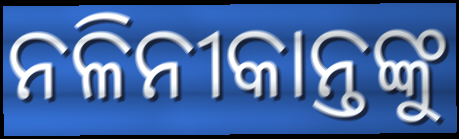
ନଳିନୀକାନ୍ତଙ୍କୁ